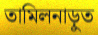
তামিলনাড়ুত